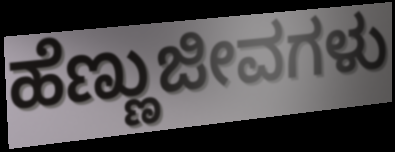
ಹೆಣ್ಣುಜೀವಗಳು